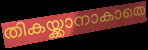
തികയ്ക്കാനാകാതെ